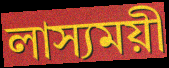
লাস্যময়ী